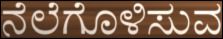
ನೆಲೆಗೊಳಿಸುವ